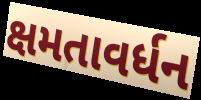
ક્ષમતાવર્ધન